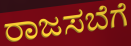
ರಾಜಸಬೆಗೆ